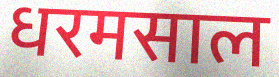
धरमसाल